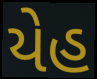
યેહ